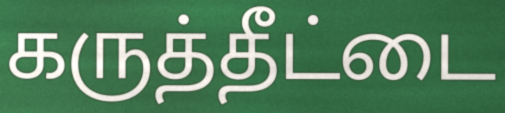
கருத்தீட்டை